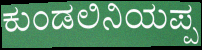
ಕುಂಡಲಿನಿಯಪ್ಪ